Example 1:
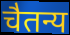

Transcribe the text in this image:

चैतन्य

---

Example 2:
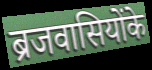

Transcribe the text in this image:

ब्रजवासियोंके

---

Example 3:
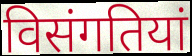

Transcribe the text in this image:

विसंगतियां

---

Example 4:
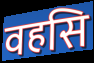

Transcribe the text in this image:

वहसि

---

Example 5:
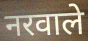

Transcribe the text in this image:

नरवाले